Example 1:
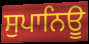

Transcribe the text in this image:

ਸੁਪਾਨਿਊ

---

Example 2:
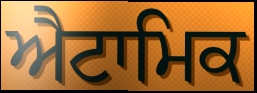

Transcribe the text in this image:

ਐਟਾਮਿਕ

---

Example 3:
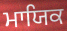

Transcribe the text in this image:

ਮਾਯਿਕ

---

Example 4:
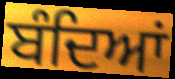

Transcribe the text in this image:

ਬੰਦਿਆਂ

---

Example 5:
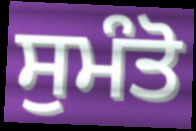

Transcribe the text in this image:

ਸੁਮੰਤੋ